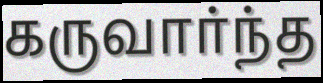
கருவார்ந்த